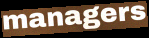
managers